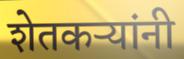
शेतकऱ्यांनी